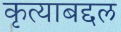
कृत्याबद्दल